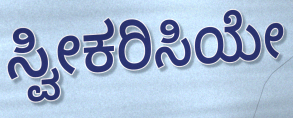
ಸ್ವೀಕರಿಸಿಯೇ